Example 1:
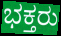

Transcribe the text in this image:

ಭಕ್ತರು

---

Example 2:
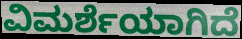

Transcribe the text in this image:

ವಿಮರ್ಶೆಯಾಗಿದೆ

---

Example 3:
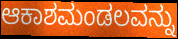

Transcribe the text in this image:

ಆಕಾಶಮಂಡಲವನ್ನು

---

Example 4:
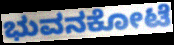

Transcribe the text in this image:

ಭುವನಕೋಟೆ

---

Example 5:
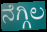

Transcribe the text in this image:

ನೆಗ್ಗಿಲ